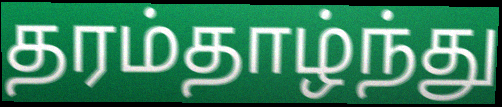
தரம்தாழ்ந்து